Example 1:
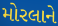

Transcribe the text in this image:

મોરલાને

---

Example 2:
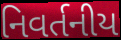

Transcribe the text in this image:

નિવર્તનીય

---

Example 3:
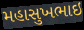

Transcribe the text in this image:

મહાસુખભાઇ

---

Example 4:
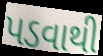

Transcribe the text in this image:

પડવાથી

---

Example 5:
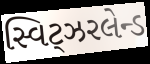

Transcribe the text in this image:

સ્વિટ્ઝરલેન્ડ